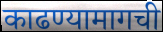
काढण्यामागची